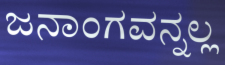
ಜನಾಂಗವನ್ನಲ್ಲ